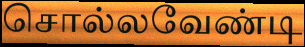
சொல்லவேண்டி